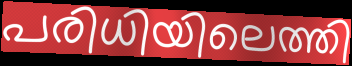
പരിധിയിലെത്തി